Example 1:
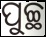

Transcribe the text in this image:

ପୁଚ୍ଛ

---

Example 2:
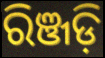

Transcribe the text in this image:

ରିଞ୍ଜଡ଼ି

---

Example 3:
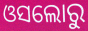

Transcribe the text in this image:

ଓସଲୋରୁ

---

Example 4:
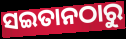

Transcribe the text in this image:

ସଇତାନଠାରୁ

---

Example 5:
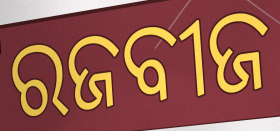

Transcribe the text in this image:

ରଜବୀଜ